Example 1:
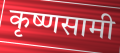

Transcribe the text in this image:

कृष्णसामी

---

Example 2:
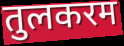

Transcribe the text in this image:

तुलकरम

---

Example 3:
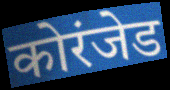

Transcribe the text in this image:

कोरंजेड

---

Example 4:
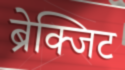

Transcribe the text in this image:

ब्रेक्जिट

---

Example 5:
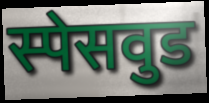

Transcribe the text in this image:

स्पेसवुड